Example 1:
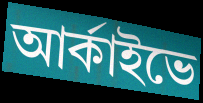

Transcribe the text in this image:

আর্কাইভে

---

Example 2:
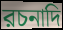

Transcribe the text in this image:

রচনাদি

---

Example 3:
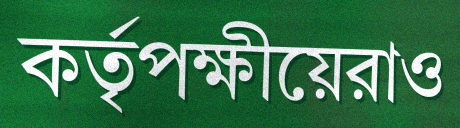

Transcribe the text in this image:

কর্তৃপক্ষীয়েরাও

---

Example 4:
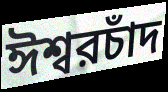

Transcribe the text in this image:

ঈশ্বরচাঁদ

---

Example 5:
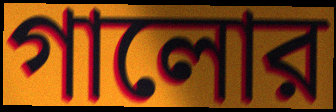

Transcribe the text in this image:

গালোর